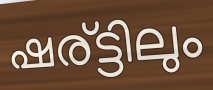
ഷര്ട്ടിലും